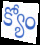
క్యోం